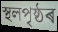
স্থলপৃষ্ঠৰ